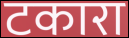
टकारा